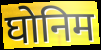
घोनिम